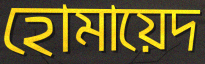
হোমায়েদ